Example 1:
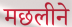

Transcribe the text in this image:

मछलीने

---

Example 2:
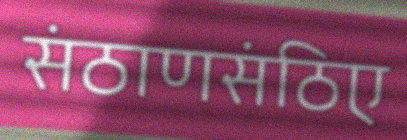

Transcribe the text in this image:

संठाणसंठिए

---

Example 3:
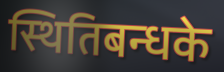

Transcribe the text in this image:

स्थितिबन्धके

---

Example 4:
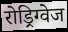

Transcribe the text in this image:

रोड्रिग्वेज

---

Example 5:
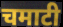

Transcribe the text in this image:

चमाटी